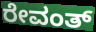
ರೇವಂತ್